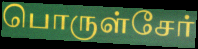
பொருள்சேர்